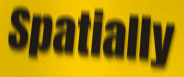
Spatially